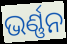
ଭର୍ଣ୍ଣନ